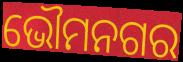
ଭୌମନଗର